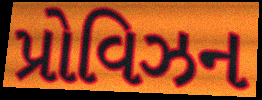
પ્રોવિઝન